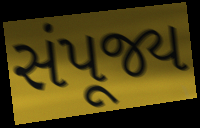
સંપૂજ્ય